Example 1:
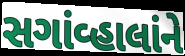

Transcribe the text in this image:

સગાંવ્હાલાંને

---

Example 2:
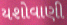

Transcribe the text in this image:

યશોવાણી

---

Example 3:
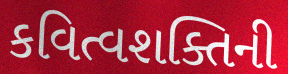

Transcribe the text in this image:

કવિત્વશક્તિની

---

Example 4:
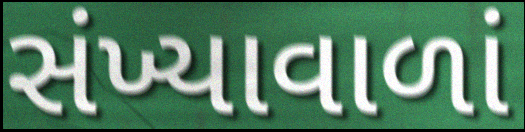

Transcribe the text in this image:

સંખ્યાવાળાં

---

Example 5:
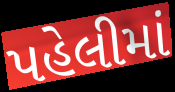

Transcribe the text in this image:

પહેલીમાં